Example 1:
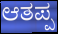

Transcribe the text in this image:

ಆತಪ್ಪ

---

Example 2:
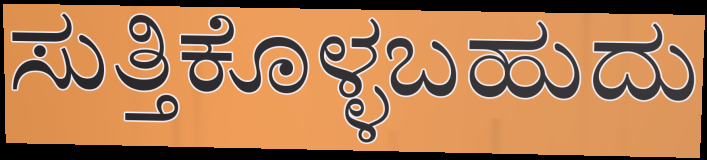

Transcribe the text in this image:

ಸುತ್ತಿಕೊಳ್ಳಬಹುದು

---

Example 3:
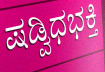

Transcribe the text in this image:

ಷಡ್ವಿಧಭಕ್ತಿ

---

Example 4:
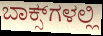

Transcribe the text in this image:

ಬಾಕ್ಸ್‌ಗಳಲ್ಲಿ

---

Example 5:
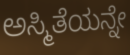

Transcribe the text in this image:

ಅಸ್ಮಿತೆಯನ್ನೇ